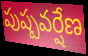
పుష్పవర్షేణ